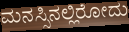
ಮನಸ್ಸಿನಲ್ಲಿರೋದು